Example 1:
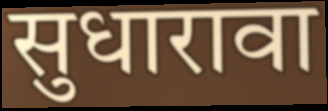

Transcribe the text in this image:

सुधारावा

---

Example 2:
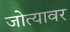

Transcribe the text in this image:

जोत्यावर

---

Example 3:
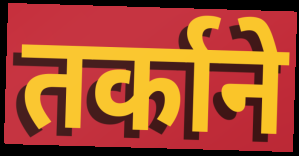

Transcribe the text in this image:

तर्काने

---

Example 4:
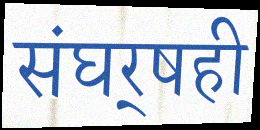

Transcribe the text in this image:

संघर्षही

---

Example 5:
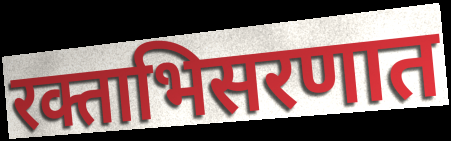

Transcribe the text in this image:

रक्ताभिसरणात